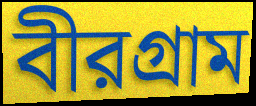
বীরগ্রাম